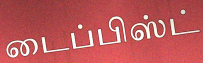
டைப்பிஸ்ட்